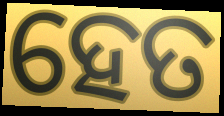
ହେତ